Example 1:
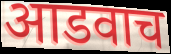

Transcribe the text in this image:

आडवाच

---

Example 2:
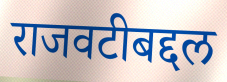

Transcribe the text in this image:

राजवटीबद्दल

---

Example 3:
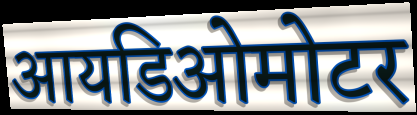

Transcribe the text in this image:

आयडिओमोटर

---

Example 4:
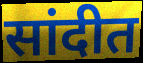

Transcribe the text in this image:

सांदीत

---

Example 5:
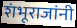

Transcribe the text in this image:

शंभूराजांनी